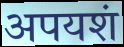
अपयशं